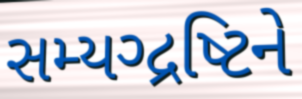
સમ્યગ્દ્રષ્ટિને